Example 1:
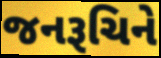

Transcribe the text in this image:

જનરૂચિને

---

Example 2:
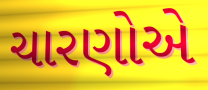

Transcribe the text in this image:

ચારણોએ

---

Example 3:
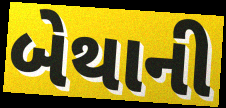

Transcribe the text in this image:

બેથાની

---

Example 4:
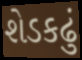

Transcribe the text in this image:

શેડકઢું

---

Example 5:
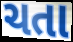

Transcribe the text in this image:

ચતા